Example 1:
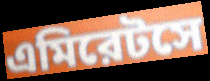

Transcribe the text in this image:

এমিরেটসে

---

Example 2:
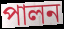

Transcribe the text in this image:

পালন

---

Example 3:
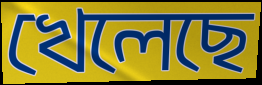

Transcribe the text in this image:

খেলেছে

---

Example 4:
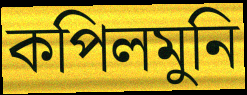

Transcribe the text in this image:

কপিলমুনি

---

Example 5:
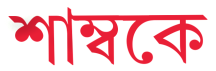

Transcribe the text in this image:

শাম্বকে